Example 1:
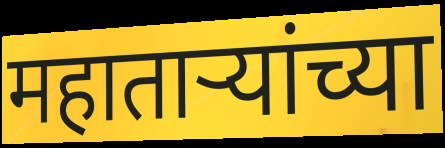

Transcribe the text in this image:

महाताऱ्यांच्या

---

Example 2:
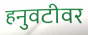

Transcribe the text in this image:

हनुवटीवर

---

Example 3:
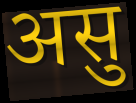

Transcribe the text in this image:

असु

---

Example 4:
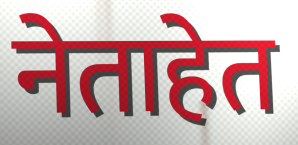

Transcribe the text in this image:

नेताहेत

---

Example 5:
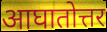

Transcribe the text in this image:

आघातोत्तर